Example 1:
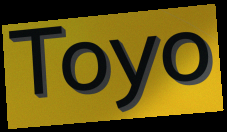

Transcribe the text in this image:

Toyo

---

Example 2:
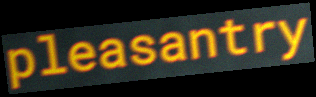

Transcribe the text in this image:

pleasantry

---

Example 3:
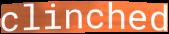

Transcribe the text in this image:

clinched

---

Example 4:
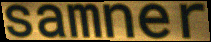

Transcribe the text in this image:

samner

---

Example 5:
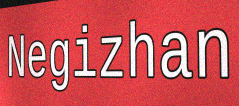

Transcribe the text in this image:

Negizhan